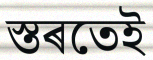
স্তৰতেই